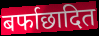
बर्फाछादित